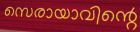
സെരായാവിന്റെ